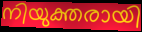
നിയുക്തരായി